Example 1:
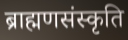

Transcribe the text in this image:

ब्राह्मणसंस्कृति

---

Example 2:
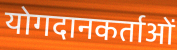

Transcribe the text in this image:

योगदानकर्ताओं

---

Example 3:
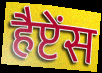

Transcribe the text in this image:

हैप्टेंस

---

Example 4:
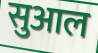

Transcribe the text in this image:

सुआल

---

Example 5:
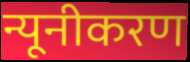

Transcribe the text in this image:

न्यूनीकरण